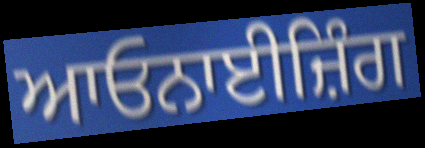
ਆਓਨਾਈਜ਼ਿੰਗ